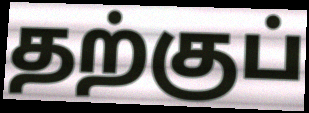
தற்குப்